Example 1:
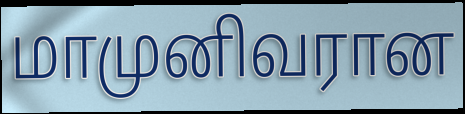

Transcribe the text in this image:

மாமுனிவரான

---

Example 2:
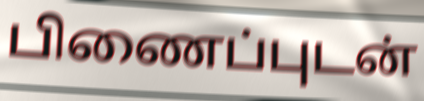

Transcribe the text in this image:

பிணைப்புடன்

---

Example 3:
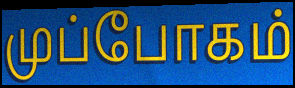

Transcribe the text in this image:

முப்போகம்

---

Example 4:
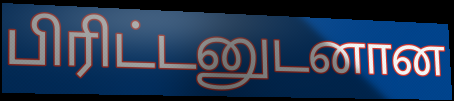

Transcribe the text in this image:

பிரிட்டனுடனான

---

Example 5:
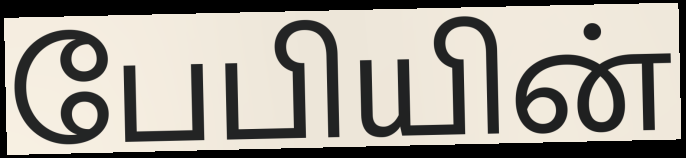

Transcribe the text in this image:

பேபியின்